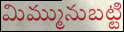
మిమ్మునుబట్టి